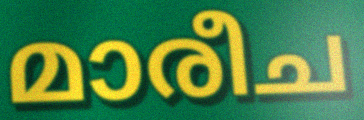
മാരീച